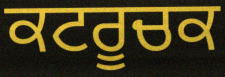
ਕਟਰੂਚਕ